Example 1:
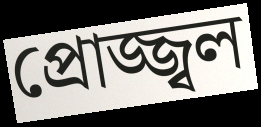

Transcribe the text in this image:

প্ৰোজ্জ্বল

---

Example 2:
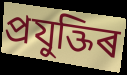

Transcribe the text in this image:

প্ৰযুক্তিৰ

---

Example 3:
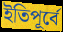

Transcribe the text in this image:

ইতিপূৰ্বে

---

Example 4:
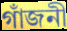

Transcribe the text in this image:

গাঁজনী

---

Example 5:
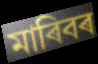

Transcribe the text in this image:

মাৰিবৰ